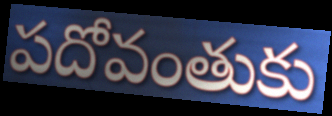
పదోవంతుకు